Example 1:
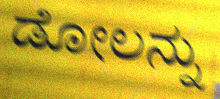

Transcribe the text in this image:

ಡೋಲನ್ನು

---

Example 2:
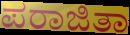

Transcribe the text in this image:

ಪರಾಜಿತಾ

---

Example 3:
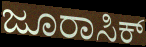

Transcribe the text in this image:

ಜೂರಾಸಿಕ್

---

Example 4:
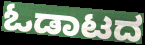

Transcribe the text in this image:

ಓಡಾಟದ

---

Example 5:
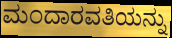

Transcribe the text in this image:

ಮಂದಾರವತಿಯನ್ನು